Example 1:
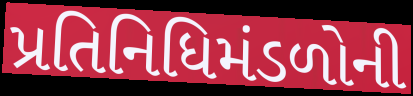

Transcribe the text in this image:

પ્રતિનિધિમંડળોની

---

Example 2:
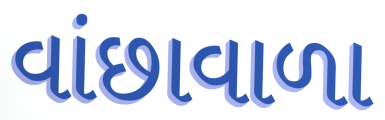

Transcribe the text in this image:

વાંછાવાળા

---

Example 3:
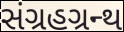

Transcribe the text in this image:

સંગ્રહગ્રન્થ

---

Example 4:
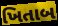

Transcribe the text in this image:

ખિતાબ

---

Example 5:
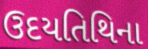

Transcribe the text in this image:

ઉદયતિથિના